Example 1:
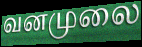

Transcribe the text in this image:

வனமுலை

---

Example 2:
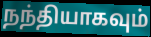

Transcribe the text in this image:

நந்தியாகவும்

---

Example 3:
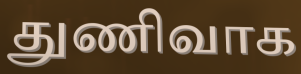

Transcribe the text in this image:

துணிவாக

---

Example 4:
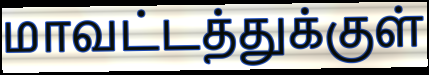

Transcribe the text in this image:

மாவட்டத்துக்குள்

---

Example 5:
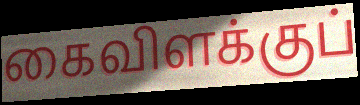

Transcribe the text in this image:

கைவிளக்குப்